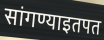
सांगण्याइतपत